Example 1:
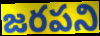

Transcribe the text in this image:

జరపని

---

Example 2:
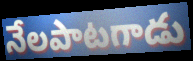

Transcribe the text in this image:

నేలపాటగాడు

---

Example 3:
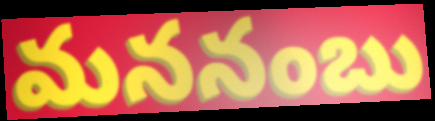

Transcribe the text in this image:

మననంబు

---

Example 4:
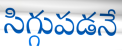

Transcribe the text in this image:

సిగ్గుపడనే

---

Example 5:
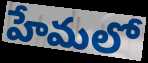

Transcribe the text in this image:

హేమలో